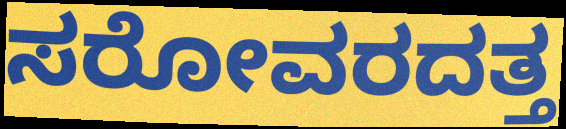
ಸರೋವರದತ್ತ